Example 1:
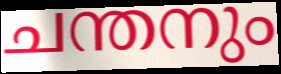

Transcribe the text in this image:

ചന്തനും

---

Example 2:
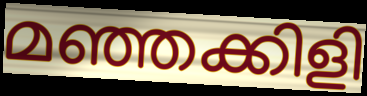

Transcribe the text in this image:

മഞ്ഞക്കിളി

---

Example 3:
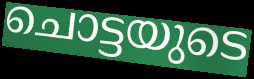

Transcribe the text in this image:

ചൊട്ടയുടെ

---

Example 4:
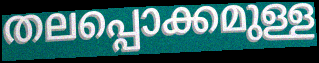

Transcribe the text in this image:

തലപ്പൊക്കമുള്ള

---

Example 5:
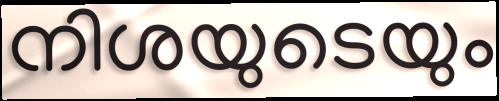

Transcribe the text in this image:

നിശയുടെയും